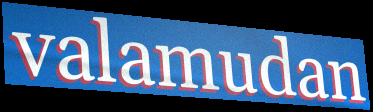
valamudan